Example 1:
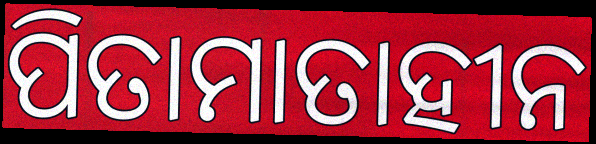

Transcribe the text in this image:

ପିତାମାତାହୀନ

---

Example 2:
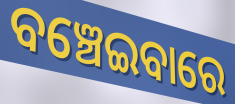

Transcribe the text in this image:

ବଞ୍ଚେଇବାରେ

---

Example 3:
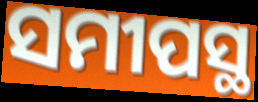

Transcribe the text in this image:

ସମୀପସ୍ଥ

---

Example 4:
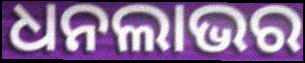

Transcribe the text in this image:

ଧନଲାଭର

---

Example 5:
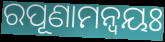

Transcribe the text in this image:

ରପୂଣାମନ୍ଵୟଃ